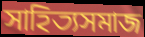
সাহিত্যসমাজ